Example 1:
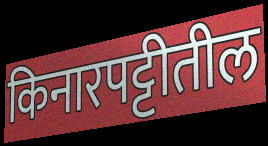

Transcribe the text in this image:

किनारपट्टीतील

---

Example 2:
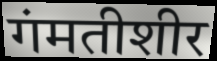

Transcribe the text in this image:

गंमतीशीर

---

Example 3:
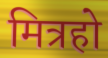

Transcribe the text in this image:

मित्रहो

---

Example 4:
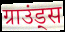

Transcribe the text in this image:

ग्राउंड्स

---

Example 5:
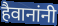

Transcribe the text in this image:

हैवानांनी